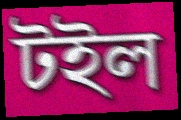
টইল